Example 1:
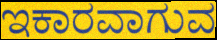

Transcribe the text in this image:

ಇಕಾರವಾಗುವ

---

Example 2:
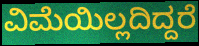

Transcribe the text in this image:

ವಿಮೆಯಿಲ್ಲದಿದ್ದರೆ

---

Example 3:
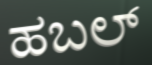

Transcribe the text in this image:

ಹಬಲ್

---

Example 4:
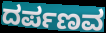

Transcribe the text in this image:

ದರ್ಪಣವ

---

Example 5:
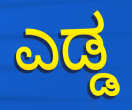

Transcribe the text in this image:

ಎಡ್ಡ